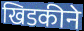
खिडकीने